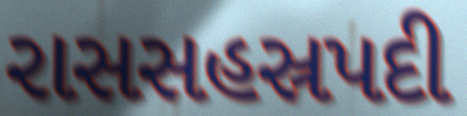
રાસસહસ્રપદી